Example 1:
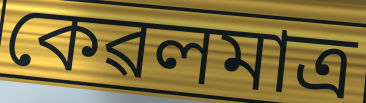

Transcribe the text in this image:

কেৱলমাত্ৰ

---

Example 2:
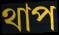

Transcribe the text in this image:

থাপ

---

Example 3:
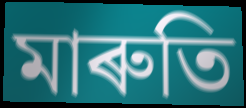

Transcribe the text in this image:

মাৰুতি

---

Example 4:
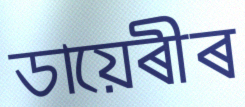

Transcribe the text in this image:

ডায়েৰীৰ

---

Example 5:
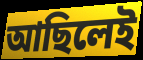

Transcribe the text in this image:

আছিলেই